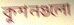
কুশনগুলো